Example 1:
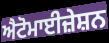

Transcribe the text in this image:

ਐਟੋਮਾਈਜ਼ੇਸ਼ਨ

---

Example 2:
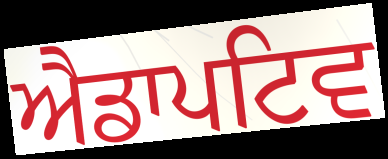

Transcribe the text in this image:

ਐਡਾਪਟਿਵ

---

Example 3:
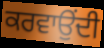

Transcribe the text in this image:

ਕਰਵਾਉਂਦੀ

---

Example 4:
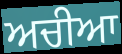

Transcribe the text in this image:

ਅਚੀਆ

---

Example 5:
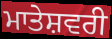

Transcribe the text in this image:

ਮਾਤੇਸ਼ਵਰੀ